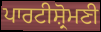
ਪਾਰਟੀਸ਼੍ਰੋਮਣੀ